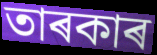
তাৰকাৰ